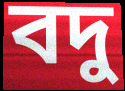
বদু